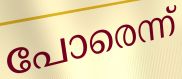
പോരെന്ന്